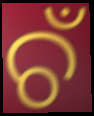
ଚଁ